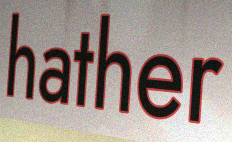
hather